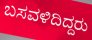
ಬಸವಳಿದಿದ್ದರು